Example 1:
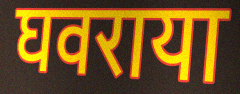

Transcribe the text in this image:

घवराया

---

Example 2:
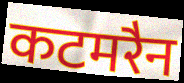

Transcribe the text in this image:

कटमरैन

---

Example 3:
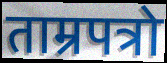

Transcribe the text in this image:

ताम्रपत्रो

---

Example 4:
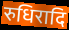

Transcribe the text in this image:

रुधिरादि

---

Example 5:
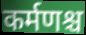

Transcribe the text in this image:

कर्मणश्च